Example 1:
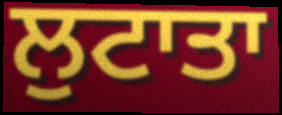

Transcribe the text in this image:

ਲੁਟਾਤਾ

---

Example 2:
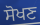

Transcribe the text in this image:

ਸੋਖਣ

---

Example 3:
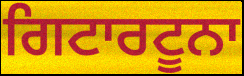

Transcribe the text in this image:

ਗਿਟਾਰਟੂਨਾ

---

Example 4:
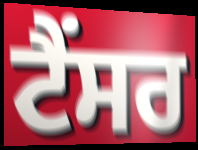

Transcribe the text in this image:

ਟੈਂਸਰ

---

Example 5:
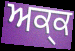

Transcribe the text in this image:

ਅਕ੍ਕ